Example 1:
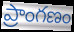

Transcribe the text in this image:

ప్రాంగణం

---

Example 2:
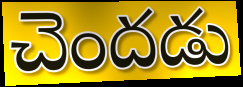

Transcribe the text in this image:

చెందడు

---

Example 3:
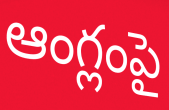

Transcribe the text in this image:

ఆంగ్లంపై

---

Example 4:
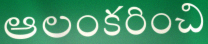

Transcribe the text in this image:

ఆలంకరించి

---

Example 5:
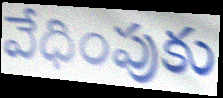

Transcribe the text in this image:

వేధింపుకు